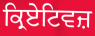
ਕ੍ਰਿਏਟਿਵਜ਼